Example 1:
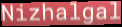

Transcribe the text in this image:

Nizhalgal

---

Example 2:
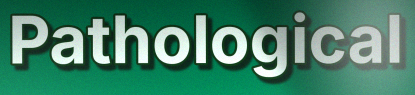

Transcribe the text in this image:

Pathological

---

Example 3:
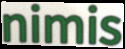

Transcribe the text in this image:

nimis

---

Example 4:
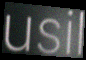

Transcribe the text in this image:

usil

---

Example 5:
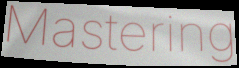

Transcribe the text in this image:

Mastering